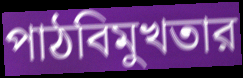
পাঠবিমুখতার